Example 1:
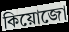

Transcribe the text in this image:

কিয়োজো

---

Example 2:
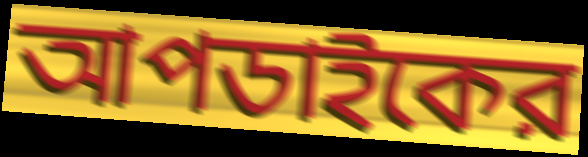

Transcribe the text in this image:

আপডাইকের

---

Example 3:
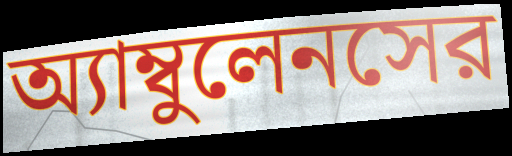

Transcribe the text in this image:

অ্যাম্বুলেনসের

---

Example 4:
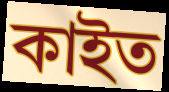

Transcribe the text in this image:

কাইত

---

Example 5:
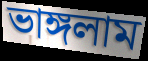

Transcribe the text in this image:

ভাঙ্গলাম